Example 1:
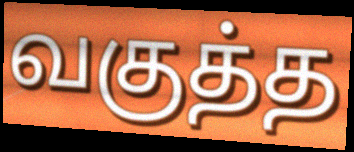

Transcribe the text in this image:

வகுத்த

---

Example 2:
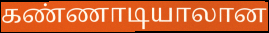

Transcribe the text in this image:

கண்ணாடியாலான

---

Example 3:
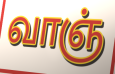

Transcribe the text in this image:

வாஞ்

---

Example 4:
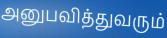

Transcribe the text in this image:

அனுபவித்துவரும்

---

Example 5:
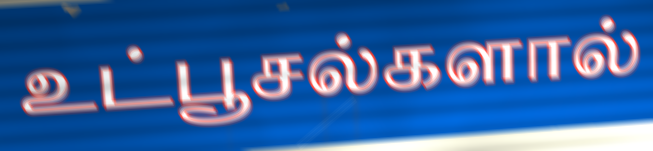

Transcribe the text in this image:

உட்பூசல்களால்